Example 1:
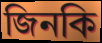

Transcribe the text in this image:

জিনকি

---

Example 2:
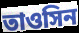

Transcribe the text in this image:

তাওসিন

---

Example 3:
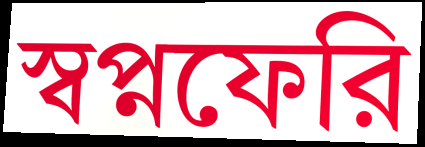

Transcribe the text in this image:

স্বপ্নফেরি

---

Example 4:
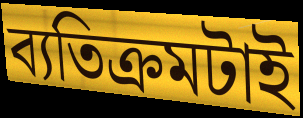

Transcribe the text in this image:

ব্যতিক্রমটাই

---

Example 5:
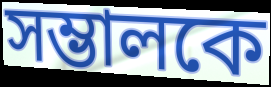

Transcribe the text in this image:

সম্ভালকে